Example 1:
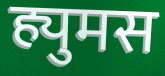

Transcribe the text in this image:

ह्युमस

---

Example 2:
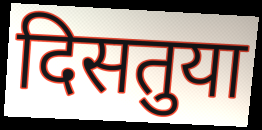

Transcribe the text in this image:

दिसतुया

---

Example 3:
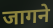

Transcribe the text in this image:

जागने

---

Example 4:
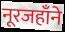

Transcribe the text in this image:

नूरजहाँने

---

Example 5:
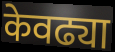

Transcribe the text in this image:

केवढ्या